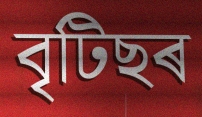
বৃটিছৰ